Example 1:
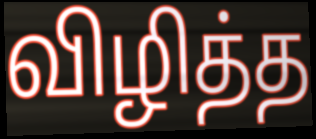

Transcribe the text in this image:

விழித்த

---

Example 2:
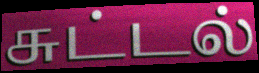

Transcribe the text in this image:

சுட்டல்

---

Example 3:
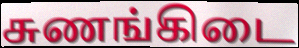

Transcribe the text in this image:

சுணங்கிடை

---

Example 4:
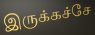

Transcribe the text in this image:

இருக்கச்சே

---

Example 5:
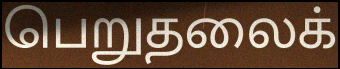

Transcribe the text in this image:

பெறுதலைக்